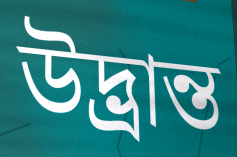
উদ্ভ্রান্ত